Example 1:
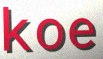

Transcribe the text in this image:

koe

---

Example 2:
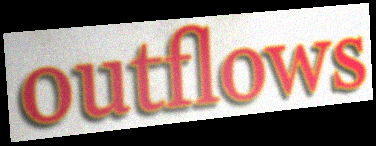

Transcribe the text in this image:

outflows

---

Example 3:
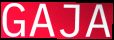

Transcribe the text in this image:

GAJA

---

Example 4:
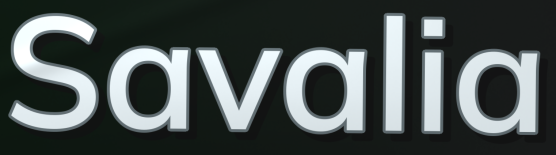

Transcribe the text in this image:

Savalia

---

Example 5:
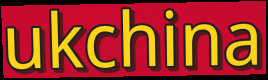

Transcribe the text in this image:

ukchina